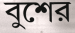
বুশের